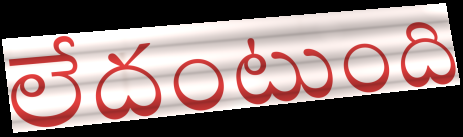
లేదంటుంది